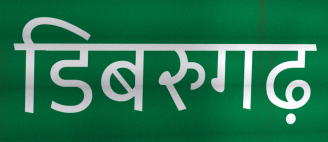
डिबरुगढ़